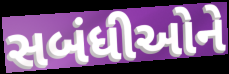
સબંધીઓને